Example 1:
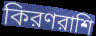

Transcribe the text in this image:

কিরণরাশি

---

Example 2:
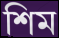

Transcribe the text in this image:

শিম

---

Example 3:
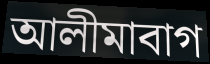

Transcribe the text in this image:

আলীমাবাগ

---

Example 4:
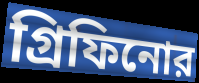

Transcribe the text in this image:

গ্রিফিনোর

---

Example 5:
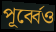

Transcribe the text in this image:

পূর্ব্বেও